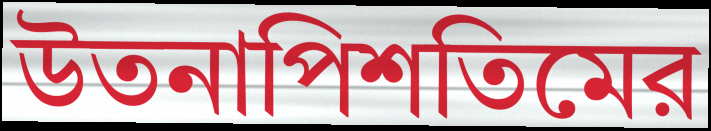
উতনাপিশতিমের